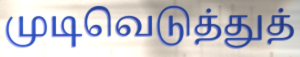
முடிவெடுத்துத்